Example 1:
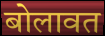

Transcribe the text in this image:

बोलावत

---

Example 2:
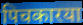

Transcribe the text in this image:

पिचकारया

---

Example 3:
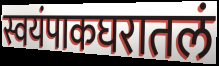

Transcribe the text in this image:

स्वयंपाकघरातलं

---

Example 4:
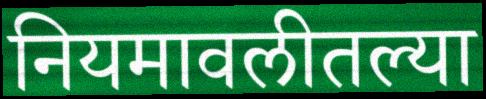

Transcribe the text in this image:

नियमावलीतल्या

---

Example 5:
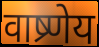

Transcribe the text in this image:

वाष्र्णेय